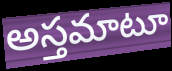
అస్తమాటూ